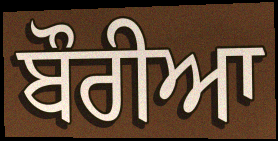
ਬੌਰੀਆ